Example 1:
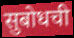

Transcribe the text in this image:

सुबोधची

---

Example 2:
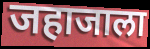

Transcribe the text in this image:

जहाजाला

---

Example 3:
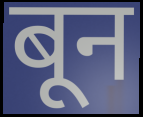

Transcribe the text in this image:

बून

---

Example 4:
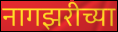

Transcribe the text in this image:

नागझरीच्या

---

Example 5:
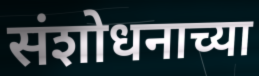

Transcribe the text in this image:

संशोधनाच्या